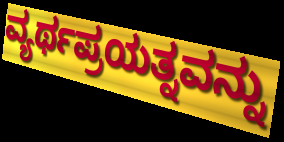
ವ್ಯರ್ಥಪ್ರಯತ್ನವನ್ನು